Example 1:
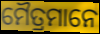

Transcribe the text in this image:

ମୈତ୍ରମାନେ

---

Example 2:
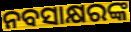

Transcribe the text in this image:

ନବସାକ୍ଷରଙ୍କ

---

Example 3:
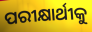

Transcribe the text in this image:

ପରୀକ୍ଷାର୍ଥୀକୁ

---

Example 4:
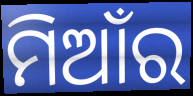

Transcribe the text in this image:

ମିଆଁର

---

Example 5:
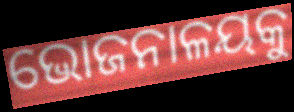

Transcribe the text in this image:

ଭୋଜନାଳୟକୁ